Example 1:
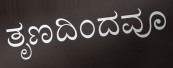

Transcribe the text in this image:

ತೃಣದಿಂದವೂ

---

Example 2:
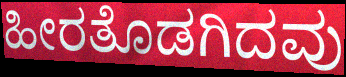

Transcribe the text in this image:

ಹೀರತೊಡಗಿದವು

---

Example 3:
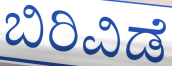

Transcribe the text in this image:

ಬಿರಿವಿಡೆ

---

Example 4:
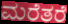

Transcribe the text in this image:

ಮರೆತರೆ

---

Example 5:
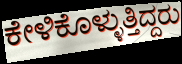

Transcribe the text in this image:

ಕೇಳಿಕೊಳ್ಳುತ್ತಿದ್ದರು